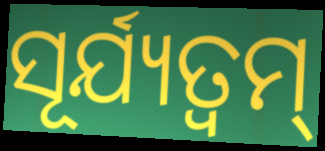
ସୂର୍ଯ୍ୟତ୍ୱମ୍